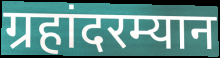
ग्रहांदरम्यान